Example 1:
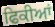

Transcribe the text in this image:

ਫਿਕੀਆਂ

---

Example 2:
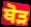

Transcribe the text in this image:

ਥੋੜ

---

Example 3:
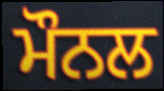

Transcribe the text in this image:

ਮੌਨਲ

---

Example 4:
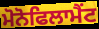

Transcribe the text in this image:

ਮੋਨੋਫਿਲਾਮੈਂਟ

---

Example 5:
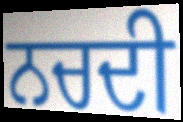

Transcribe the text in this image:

ਨਚਦੀ